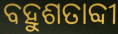
ବହୁଶତାବ୍ଦୀ